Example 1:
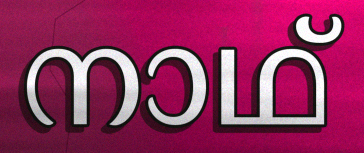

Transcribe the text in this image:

നാഥ്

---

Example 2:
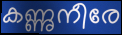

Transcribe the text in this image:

കണ്ണുനീരേ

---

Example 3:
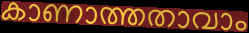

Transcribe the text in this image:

കാണാത്തതാവാം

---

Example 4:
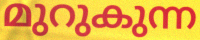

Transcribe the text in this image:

മുറുകുന്ന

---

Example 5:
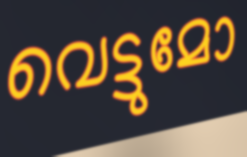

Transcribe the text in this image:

വെട്ടുമോ